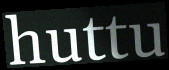
huttu